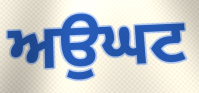
ਅਉਘਟ